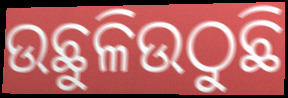
ଉଛୁଳିଉଠୁଛି